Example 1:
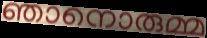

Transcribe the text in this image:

ഞാനൊരുമ്മ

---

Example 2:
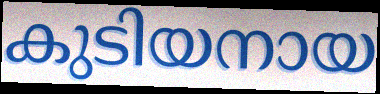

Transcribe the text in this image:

കുടിയനായ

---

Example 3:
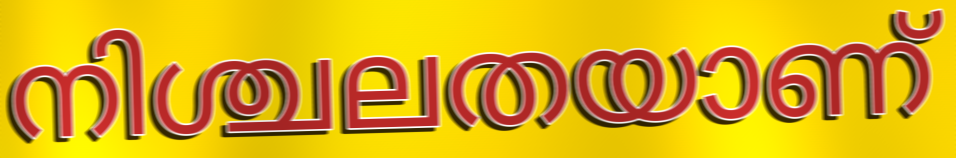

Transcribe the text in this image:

നിശ്ചലതയാണ്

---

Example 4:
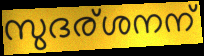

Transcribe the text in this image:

സുദര്ശനന്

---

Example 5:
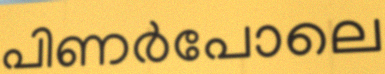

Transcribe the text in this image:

പിണർപോലെ